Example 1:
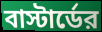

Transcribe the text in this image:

বাস্টার্ডের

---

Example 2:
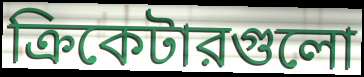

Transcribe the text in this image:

ক্রিকেটারগুলো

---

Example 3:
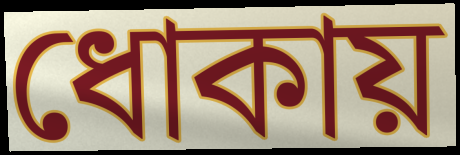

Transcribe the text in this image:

ধোকায়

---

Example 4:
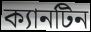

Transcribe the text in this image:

ক্যানটিন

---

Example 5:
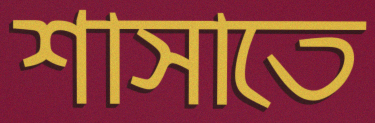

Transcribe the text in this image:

শাসাতে